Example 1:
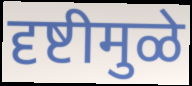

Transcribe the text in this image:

दृष्टीमुळे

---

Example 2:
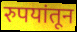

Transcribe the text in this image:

रुपयांतून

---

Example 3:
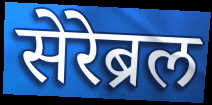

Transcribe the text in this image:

सेरेब्रल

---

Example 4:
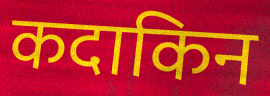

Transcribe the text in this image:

कदाकिन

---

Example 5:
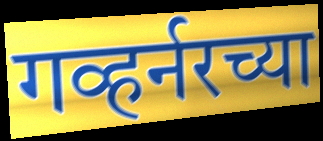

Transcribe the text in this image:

गव्हर्नरच्या